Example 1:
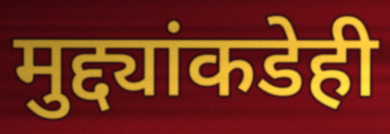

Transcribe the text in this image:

मुद्द्यांकडेही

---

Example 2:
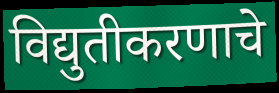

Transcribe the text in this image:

विद्युतीकरणाचे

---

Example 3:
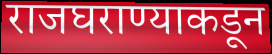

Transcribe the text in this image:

राजघराण्याकडून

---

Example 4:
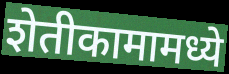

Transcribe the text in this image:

शेतीकामामध्ये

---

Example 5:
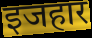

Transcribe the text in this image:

इजहार